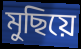
মুছিয়ে